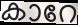
കാറേ